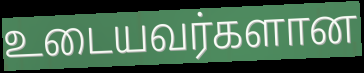
உடையவர்களான